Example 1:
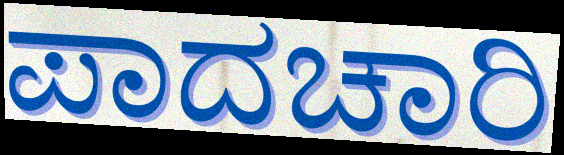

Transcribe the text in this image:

ಪಾದಚಾರಿ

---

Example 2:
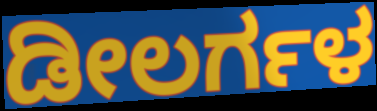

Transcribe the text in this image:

ಡೀಲರ್ಗಳ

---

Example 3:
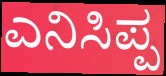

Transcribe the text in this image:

ಎನಿಸಿಪ್ಪ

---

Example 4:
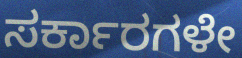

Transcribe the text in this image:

ಸರ್ಕಾರಗಳೇ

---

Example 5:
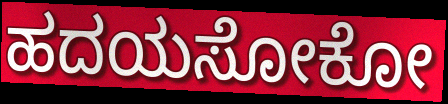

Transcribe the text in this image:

ಹದಯಸೋಕೋ